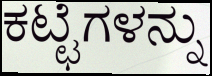
ಕಟ್ಟೆಗಳನ್ನು